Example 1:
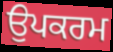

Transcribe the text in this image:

ਉਪਕਰਮ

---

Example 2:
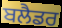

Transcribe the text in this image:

ਬਲੈਡਰ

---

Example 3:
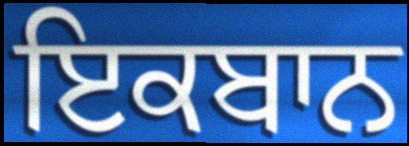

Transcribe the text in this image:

ਇਕਬਾਨ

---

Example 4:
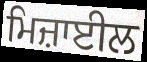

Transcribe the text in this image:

ਮਿਜ਼ਾਈਲ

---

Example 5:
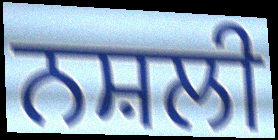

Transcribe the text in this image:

ਨਸ਼ਲੀ